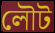
লৌট